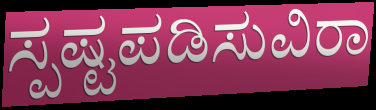
ಸ್ಪಷ್ಟಪಡಿಸುವಿರಾ